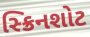
સ્ક્રિનશોટ